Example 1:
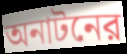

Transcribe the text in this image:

অনাটনের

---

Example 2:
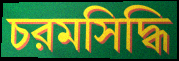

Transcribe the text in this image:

চরমসিদ্ধি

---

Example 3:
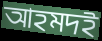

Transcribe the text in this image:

আহমদই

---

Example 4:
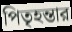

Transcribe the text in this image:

পিতৃহন্তার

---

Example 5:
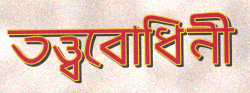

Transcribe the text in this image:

তত্ত্ববোধিনী